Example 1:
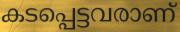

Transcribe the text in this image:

കടപ്പെട്ടവരാണ്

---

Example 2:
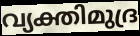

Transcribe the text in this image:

വ്യക്തിമുദ്ര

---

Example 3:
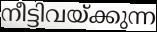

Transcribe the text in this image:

നീട്ടിവയ്ക്കുന്ന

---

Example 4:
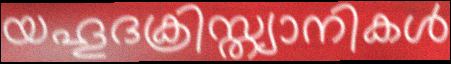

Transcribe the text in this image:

യഹൂദക്രിസ്ത്യാനികൾ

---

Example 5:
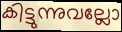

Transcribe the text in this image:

കിട്ടുന്നുവല്ലോ